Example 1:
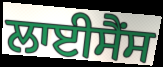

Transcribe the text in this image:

ਲਾਈਸੈਂਸ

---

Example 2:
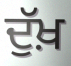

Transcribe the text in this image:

ਦੁੱਖ਼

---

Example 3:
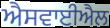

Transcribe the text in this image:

ਐਸਵਾਈਐਲ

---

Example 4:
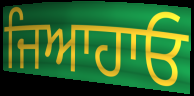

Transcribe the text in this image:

ਜਿਆਹਾਓ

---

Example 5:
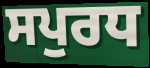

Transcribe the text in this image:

ਸਪੁਰਧ